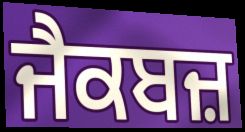
ਜੈਕਬਜ਼